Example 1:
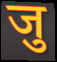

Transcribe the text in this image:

जु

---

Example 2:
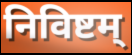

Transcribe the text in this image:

निविष्टम्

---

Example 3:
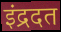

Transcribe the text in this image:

इंद्रदत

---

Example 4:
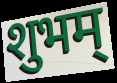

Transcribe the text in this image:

शुभम्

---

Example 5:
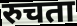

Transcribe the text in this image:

रुचता